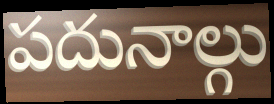
పదునాల్గు